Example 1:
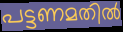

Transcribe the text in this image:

പട്ടണമതിൽ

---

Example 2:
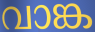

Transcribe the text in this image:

വാങ്ക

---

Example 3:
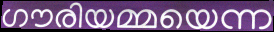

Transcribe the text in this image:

ഗൗരിയമ്മയെന്ന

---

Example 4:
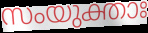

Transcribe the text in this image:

സംയുക്താഃ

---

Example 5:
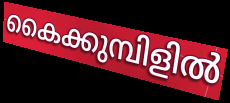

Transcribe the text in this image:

കൈക്കുമ്പിളിൽ